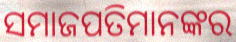
ସମାଜପତିମାନଙ୍କର